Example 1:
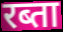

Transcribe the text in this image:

रब्ता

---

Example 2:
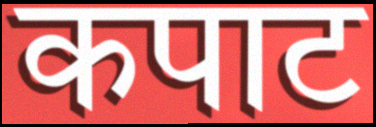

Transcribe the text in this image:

कपाट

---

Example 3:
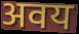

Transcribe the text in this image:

अवय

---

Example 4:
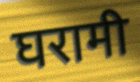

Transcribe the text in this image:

घरामी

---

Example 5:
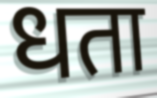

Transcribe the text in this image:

धता